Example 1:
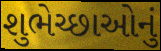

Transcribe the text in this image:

શુભેચ્છાઓનું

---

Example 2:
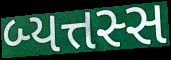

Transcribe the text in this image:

બ્યત્તસ્સ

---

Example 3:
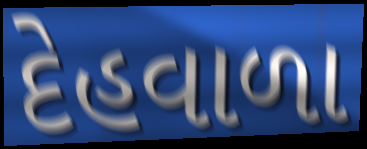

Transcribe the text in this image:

દેહવાળા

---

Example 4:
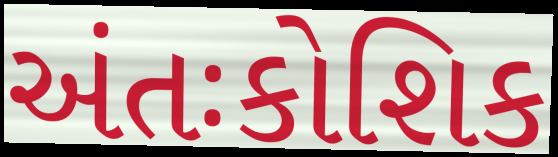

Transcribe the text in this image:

અંતઃકોશિક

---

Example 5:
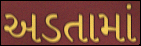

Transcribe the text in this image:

અડતામાં